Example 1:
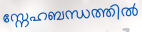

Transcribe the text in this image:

സ്നേഹബന്ധത്തിൽ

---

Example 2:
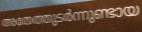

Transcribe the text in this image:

അതേത്തുടർന്നുണ്ടായ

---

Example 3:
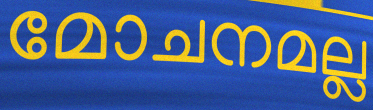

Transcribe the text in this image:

മോചനമല്ല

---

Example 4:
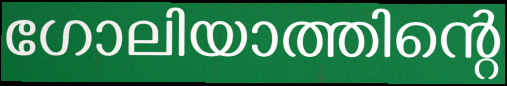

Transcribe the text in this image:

ഗോലിയാത്തിന്റെ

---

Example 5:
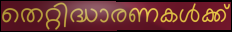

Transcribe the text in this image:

തെറ്റിദ്ധാരണകൾക്ക്